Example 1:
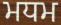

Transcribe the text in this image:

ਮਧਮ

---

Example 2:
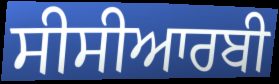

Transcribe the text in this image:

ਸੀਸੀਆਰਬੀ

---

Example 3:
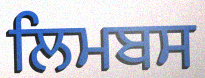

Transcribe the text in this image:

ਲਿਮਬਸ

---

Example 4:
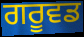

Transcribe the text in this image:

ਗਰੂਵਡ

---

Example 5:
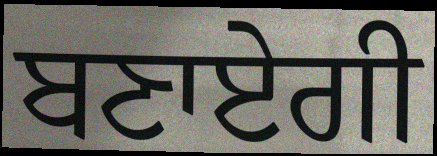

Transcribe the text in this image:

ਬਣਾਏਗੀ